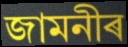
জামনীৰ